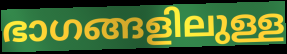
ഭാഗങ്ങളിലുള്ള